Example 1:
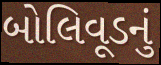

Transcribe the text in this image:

બોલિવૂડનું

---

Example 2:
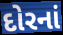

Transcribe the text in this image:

દોરનાં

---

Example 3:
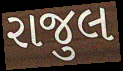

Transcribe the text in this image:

રાજુલ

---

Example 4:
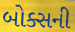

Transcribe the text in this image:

બોક્સની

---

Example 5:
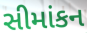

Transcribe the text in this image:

સીમાંકન